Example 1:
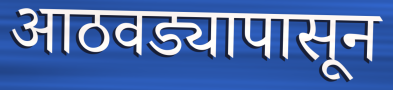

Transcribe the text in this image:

आठवड्यापासून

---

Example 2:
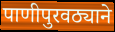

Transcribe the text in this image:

पाणीपुरवठ्याने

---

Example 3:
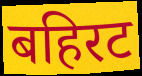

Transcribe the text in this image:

बहिरट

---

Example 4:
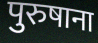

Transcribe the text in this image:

पुरुषाना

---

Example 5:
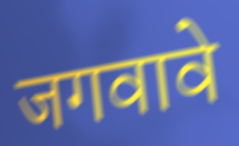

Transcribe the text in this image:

जगवावे